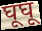
घूघू